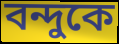
বন্দুকে